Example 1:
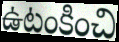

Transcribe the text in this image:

ఉటంకించి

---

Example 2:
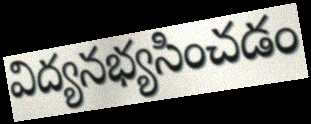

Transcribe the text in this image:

విద్యనభ్యసించడం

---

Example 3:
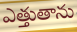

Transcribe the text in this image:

ఎత్తుతాను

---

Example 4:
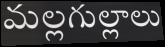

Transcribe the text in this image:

మల్లగుల్లాలు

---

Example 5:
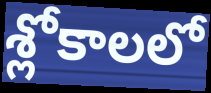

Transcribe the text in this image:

శ్లోకాలలో